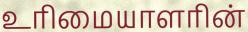
உரிமையாளரின்